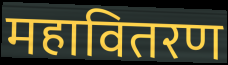
महावितरण